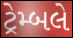
ટ્રેમ્બલે